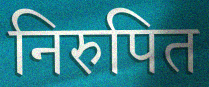
निरुपित